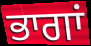
ਭਾਗਾਂ